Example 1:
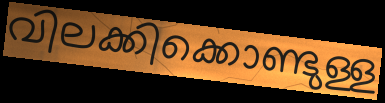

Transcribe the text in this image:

വിലക്കിക്കൊണ്ടുള്ള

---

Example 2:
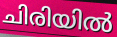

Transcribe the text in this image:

ചിരിയിൽ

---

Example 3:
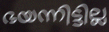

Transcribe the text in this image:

ഭയന്നിട്ടില്ല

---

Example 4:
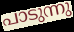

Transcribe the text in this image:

പാടുന്നു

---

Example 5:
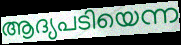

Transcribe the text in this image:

ആദ്യപടിയെന്ന